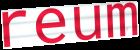
reum